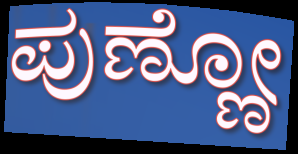
ಪುಣ್ಣೋ